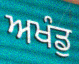
ਅਖੰਡੁ